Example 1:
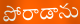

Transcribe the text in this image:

పోరాడాను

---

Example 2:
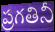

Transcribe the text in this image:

ప్రగతినీ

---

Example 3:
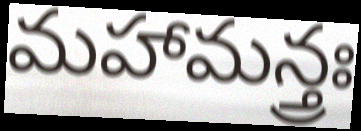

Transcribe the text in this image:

మహామన్త్రః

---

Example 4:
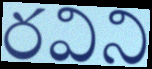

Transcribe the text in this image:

రవిని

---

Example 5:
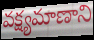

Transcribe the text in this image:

వక్ష్యమాణాని